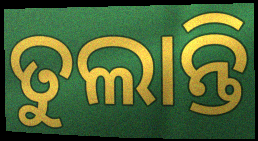
ତୁଲାନ୍ତି